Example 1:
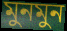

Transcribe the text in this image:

মুনমুন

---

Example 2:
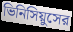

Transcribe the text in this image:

ভিনিসিয়ুসের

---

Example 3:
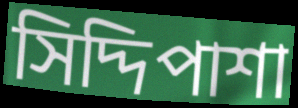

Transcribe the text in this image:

সিদ্দিপাশা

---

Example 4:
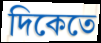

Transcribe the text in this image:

দিকেতে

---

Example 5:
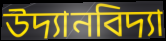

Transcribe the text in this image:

উদ্যানবিদ্যা